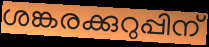
ശങ്കരക്കുറുപ്പിന്